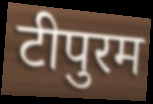
टीपुरम